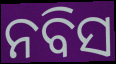
ନବିସ